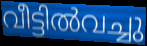
വീട്ടിൽവച്ചു